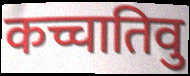
कच्चातिवु